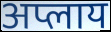
अप्लाय